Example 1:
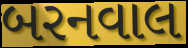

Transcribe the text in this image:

બરનવાલ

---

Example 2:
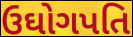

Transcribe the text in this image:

ઉઘોગપતિ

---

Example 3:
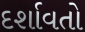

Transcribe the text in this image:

દર્શાવતો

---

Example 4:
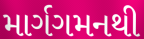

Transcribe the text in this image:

માર્ગગમનથી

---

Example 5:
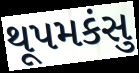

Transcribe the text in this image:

થૂપમકંસુ